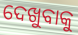
ଦେଖୁବାକୁ